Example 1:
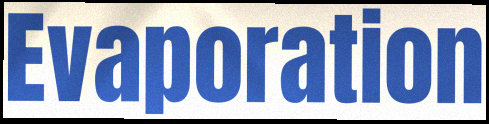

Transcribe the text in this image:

Evaporation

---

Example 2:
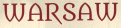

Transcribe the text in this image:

WARSAW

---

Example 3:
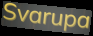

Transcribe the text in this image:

Svarupa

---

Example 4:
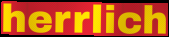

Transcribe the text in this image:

herrlich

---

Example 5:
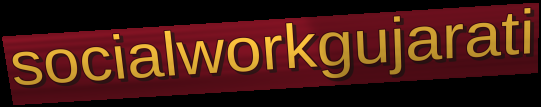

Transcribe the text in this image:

socialworkgujarati